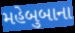
મહેબુબાના